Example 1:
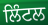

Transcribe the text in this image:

ਲਿੰਟਲ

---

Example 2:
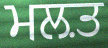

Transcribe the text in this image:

ਮਲ਼ਤ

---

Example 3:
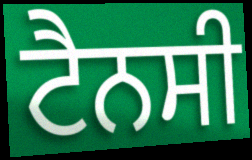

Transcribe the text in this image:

ਟੈਨਸੀ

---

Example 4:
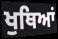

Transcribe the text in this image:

ਖੁਥਿਆਂ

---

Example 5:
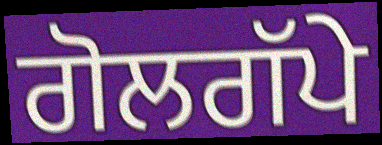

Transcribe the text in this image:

ਗੋਲਗੱਪੇ